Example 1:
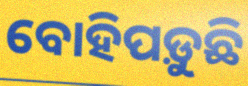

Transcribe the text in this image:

ବୋହିପଡ଼ୁଛି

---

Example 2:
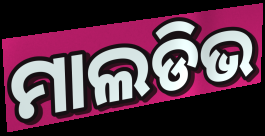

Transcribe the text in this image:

ମାଲଡିଭ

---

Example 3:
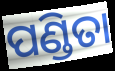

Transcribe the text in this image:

ପଣ୍ଡିତା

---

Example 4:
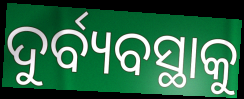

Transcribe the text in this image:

ଦୁର୍ବ୍ୟବସ୍ଥାକୁ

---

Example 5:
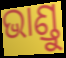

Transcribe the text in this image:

ଭାଣ୍ଡୁ